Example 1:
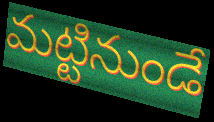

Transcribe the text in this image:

మట్టినుండే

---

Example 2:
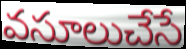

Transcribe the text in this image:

వసూలుచేసే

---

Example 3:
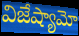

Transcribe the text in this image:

విజేష్యామో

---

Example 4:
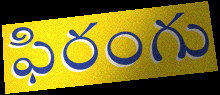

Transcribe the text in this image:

ఫిరంగు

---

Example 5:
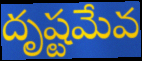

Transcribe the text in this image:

దృష్టమేవ